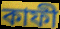
কাফী